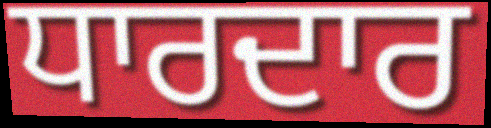
ਧਾਰਦਾਰ